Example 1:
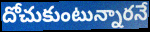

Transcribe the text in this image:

దోచుకుంటున్నారనే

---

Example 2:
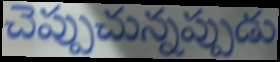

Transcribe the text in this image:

చెప్పుచున్నప్పుడు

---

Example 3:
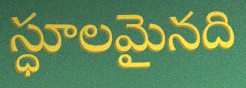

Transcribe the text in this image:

స్ధూలమైనది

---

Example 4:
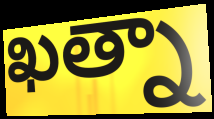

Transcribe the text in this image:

ఖత్నా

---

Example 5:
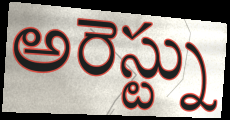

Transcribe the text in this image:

అరెస్ట్ను